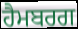
ਹੈਮਬਰਗ